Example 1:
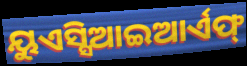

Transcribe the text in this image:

ୟୁଏସ୍ସିଆଇଆର୍ଏଫ୍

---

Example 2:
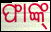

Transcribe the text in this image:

ଫାଙ୍କ୍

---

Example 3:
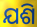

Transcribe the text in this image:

ଯଶି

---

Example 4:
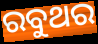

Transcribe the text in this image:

ରବୁଥର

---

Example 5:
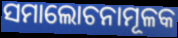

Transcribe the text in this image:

ସମାଲୋଚନାମୂଳକ